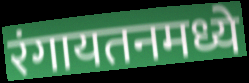
रंगायतनमध्ये